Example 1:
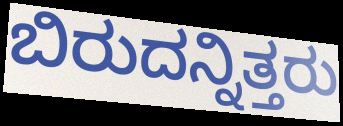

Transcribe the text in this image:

ಬಿರುದನ್ನಿತ್ತರು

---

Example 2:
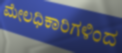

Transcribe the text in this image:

ಮೇಲಧಿಕಾರಿಗಳಿಂದ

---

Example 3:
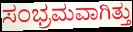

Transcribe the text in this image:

ಸಂಭ್ರಮವಾಗಿತ್ತು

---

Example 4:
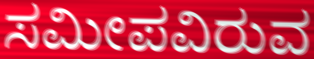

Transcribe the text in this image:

ಸಮೀಪವಿರುವ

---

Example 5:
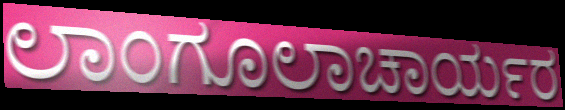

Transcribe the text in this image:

ಲಾಂಗೂಲಾಚಾರ್ಯರ